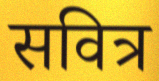
सवित्र